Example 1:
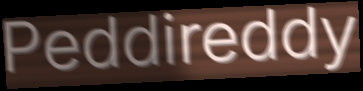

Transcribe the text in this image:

Peddireddy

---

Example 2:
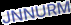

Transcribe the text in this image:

JNNURM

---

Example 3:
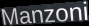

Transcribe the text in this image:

Manzoni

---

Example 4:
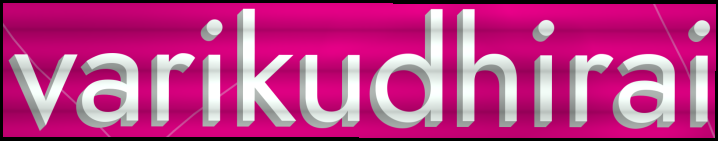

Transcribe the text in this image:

varikudhirai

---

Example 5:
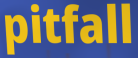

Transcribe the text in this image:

pitfall